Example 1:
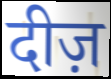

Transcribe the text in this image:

दीज़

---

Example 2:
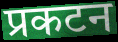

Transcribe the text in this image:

प्रकटन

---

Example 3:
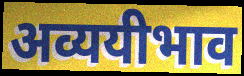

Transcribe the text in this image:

अव्ययीभाव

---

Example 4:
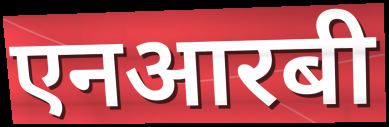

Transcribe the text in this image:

एनआरबी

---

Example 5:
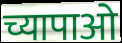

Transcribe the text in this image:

च्यापाओ